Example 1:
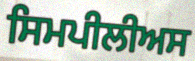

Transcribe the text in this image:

ਸਿਮਪੀਲੀਅਸ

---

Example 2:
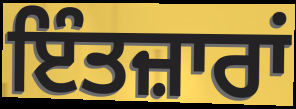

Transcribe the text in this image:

ਇੰਤਜ਼ਾਰਾਂ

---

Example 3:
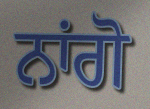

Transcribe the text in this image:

ਨਾਂਗੋ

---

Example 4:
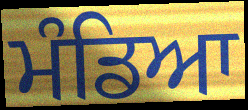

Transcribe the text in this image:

ਮੰਡਿਆ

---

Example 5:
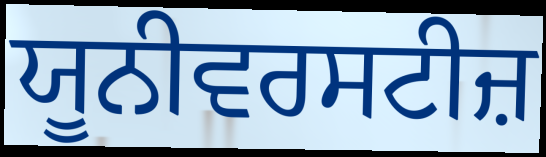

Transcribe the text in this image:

ਯੂਨੀਵਰਸਟੀਜ਼